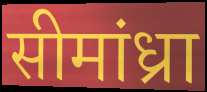
सीमांध्रा